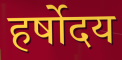
हर्षोदय